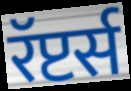
रॅप्टर्स